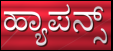
ಹ್ಯಾಪನ್ಸ್